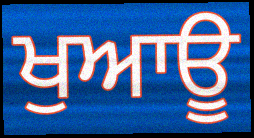
ਖੁਆਊ